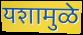
यशामुळे